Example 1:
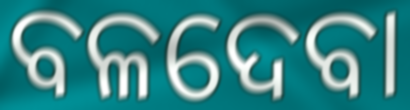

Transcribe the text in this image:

ବଳଦେବା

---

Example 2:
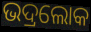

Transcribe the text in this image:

ଭଦ୍ରଲୋକ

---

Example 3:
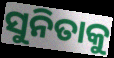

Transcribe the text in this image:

ସୁନିତାକୁ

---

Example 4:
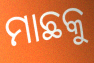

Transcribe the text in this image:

ମାଛକୁ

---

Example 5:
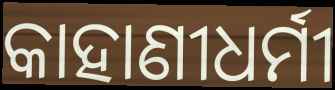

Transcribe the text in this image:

କାହାଣୀଧର୍ମୀ